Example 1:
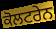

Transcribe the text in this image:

ਕੋਲਟਰੇਨ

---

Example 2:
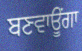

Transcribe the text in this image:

ਬਣਵਾਊਂਗਾ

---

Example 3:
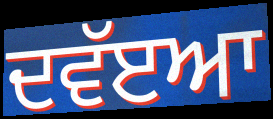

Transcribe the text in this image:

ਦਵੱੲਆ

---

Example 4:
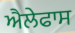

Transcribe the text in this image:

ਐਲੇਫਾਸ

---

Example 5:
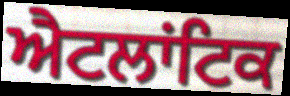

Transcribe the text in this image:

ਐਟਲਾਂਟਿਕ